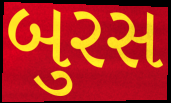
બુરસ